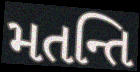
મતન્તિ